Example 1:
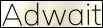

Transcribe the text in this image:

Adwait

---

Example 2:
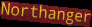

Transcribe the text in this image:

Northanger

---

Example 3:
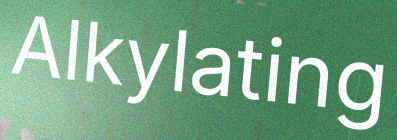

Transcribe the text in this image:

Alkylating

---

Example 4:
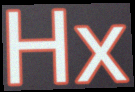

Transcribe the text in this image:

Hx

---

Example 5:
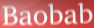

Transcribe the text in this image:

Baobab